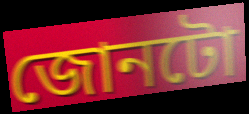
জোনটো